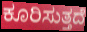
ಕೂರಿಸುತ್ತದೆ